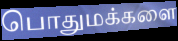
பொதுமக்களை